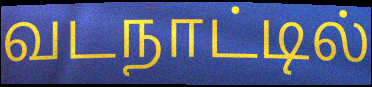
வடநாட்டில்